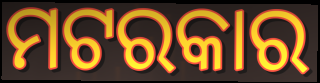
ମଟରକାର